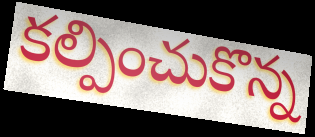
కల్పించుకొన్న